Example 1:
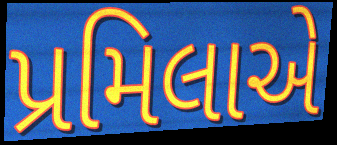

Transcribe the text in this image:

પ્રમિલાએ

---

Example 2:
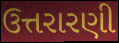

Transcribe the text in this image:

ઉત્તરારણી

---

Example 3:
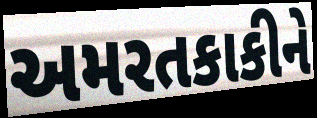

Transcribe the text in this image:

અમરતકાકીને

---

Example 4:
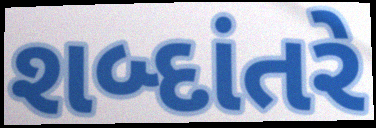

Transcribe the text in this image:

શબ્દાંતરે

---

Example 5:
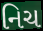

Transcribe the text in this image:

નિચ